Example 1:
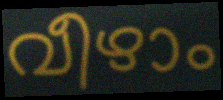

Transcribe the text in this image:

വീഴാം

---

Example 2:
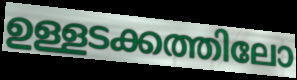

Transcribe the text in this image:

ഉള്ളടക്കത്തിലോ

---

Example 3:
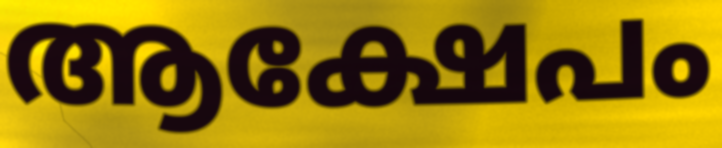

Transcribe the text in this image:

ആക്ഷേപം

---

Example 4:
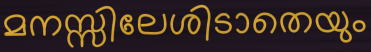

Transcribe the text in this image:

മനസ്സിലേശിടാതെയും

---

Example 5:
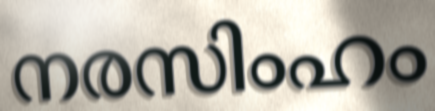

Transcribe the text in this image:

നരസിംഹം